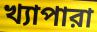
খ্যাপারা